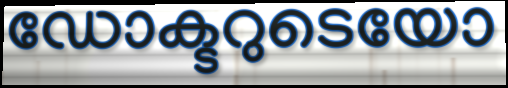
ഡോക്ടറുടെയോ